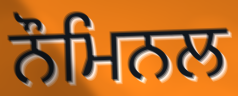
ਨੌਮਿਨਲ